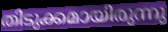
തിടുക്കമായിരുന്നു